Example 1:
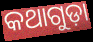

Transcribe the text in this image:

କଥାଗୁଡ଼ା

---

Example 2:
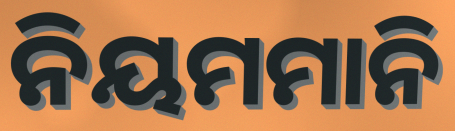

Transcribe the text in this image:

ନିୟମମାନି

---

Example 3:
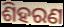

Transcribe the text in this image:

ଶିହରଣ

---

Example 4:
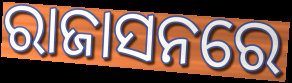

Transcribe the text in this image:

ରାଜାସନରେ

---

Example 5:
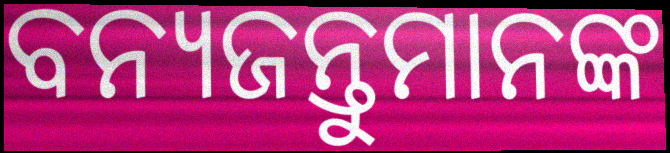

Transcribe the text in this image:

ବନ୍ୟଜନ୍ତୁମାନଙ୍କ